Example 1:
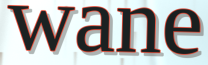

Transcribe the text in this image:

wane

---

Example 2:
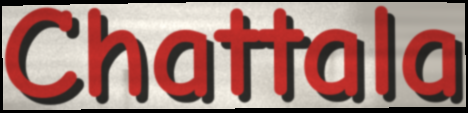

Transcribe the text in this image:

Chattala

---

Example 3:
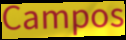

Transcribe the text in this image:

Campos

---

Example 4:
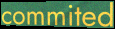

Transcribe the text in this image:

commited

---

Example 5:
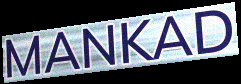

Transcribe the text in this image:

MANKAD